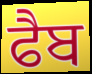
ਫੈਬ